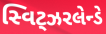
સ્વિટ્ઝરલેન્ડે